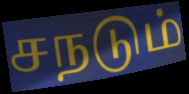
சநடும்